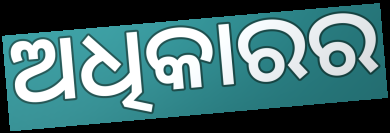
ଅଧିକାରର